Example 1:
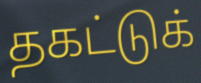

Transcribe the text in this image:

தகட்டுக்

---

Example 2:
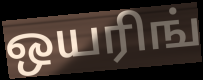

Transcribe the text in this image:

ஒயரிங்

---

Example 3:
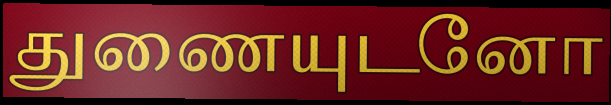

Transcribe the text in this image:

துணையுடனோ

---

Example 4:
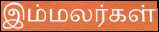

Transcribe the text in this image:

இம்மலர்கள்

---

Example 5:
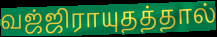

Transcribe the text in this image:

வஜ்ஜிராயுதத்தால்